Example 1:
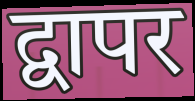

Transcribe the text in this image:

द्वापर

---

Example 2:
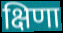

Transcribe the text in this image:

क्षिणा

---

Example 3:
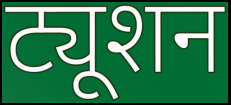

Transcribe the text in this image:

ट्यूशन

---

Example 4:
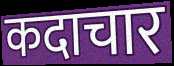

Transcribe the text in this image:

कदाचार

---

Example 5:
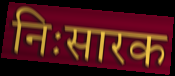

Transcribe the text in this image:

निःसारक